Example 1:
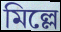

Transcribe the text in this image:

মিল্লে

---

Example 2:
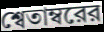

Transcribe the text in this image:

শ্বেতাম্বরের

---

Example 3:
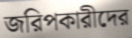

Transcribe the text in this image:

জরিপকারীদের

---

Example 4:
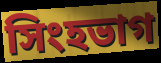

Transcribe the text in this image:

সিংহভাগ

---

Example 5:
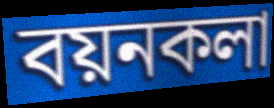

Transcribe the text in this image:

বয়নকলা